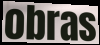
obras